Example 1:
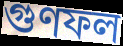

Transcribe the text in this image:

গুণফল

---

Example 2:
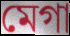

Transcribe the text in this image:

মেগা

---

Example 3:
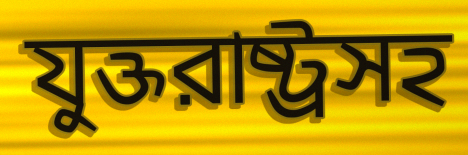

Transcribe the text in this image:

যুক্তরাষ্ট্রসহ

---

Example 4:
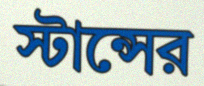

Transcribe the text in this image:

স্টান্সের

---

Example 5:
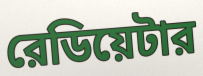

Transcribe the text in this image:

রেডিয়েটার